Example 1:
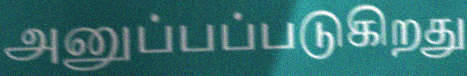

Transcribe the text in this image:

அனுப்பப்படுகிறது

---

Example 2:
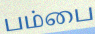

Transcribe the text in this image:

பம்பை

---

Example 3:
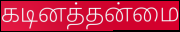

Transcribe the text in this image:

கடினத்தன்மை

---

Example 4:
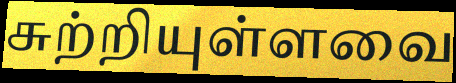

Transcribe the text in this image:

சுற்றியுள்ளவை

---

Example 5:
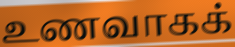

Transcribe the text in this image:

உணவாகக்